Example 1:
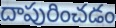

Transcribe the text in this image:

దాపురించడం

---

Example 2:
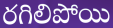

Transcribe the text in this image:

రగిలిపోయి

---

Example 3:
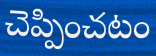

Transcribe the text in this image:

చెప్పించటం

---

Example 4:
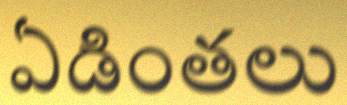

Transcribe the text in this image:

ఏడింతలు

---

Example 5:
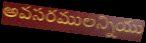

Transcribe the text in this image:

అవసరములన్నియు